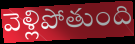
వెళ్లిపోతుంది